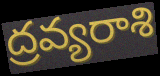
ద్రవ్యరాశి